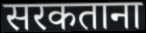
सरकताना